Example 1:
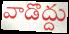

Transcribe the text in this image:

వాడొద్దు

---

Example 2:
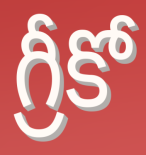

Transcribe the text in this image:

గ్రీకో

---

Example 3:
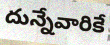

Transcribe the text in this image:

దున్నేవారికే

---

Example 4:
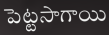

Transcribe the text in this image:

పెట్టసాగాయి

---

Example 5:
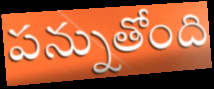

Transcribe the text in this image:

పన్నుతోంది